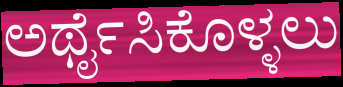
ಅರ್ಥೈಸಿಕೊಳ್ಳಲು